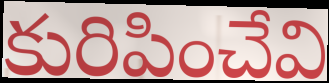
కురిపించేవి